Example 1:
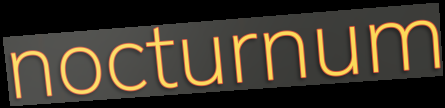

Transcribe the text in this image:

nocturnum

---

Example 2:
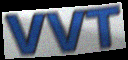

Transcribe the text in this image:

VVT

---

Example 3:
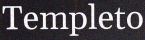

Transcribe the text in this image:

Templeto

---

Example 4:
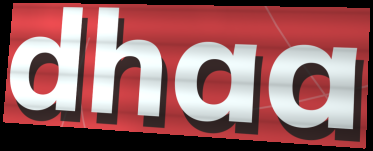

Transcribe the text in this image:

dhaa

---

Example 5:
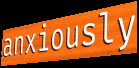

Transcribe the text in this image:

anxiously